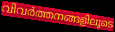
വിവർത്തനങ്ങളിലൂടെ